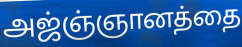
அஜ்ஞ்ஞானத்தை